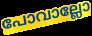
പോവാല്ലോ